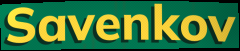
Savenkov